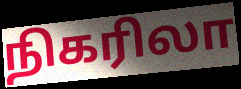
நிகரிலா